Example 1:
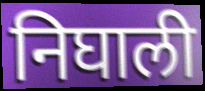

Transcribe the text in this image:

निघाली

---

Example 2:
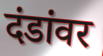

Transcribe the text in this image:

दंडांवर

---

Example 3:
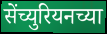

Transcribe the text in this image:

सेंच्युरियनच्या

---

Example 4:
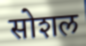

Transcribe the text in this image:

सोशल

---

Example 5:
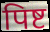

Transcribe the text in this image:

पिष्ट